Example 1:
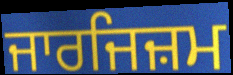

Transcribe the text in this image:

ਜਾਰਜਿਜ਼ਮ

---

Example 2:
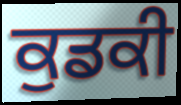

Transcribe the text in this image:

ਕੁਡਕੀ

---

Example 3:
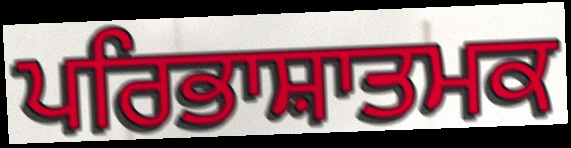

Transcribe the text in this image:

ਪਰਿਭਾਸ਼ਾਤਮਕ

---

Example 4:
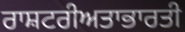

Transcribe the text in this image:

ਰਾਸ਼ਟਰੀਅਤਾਭਾਰਤੀ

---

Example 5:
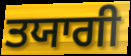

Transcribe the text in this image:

ਤਯਾਗੀ